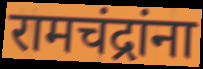
रामचंद्रांना